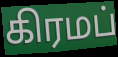
கிரமப்